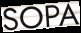
SOPA